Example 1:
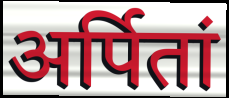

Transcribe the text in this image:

अर्पितां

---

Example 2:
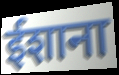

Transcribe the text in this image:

ईशाना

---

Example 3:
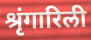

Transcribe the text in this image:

श्रृंगारिली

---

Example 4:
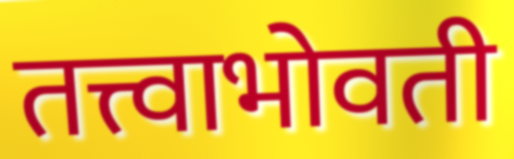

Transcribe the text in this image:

तत्त्वाभोवती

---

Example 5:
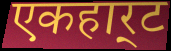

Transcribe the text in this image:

एकहार्ट